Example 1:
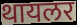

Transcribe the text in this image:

थायलर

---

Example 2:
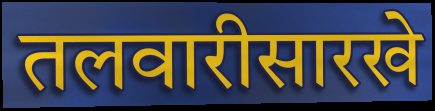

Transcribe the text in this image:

तलवारीसारखे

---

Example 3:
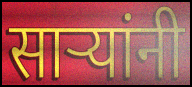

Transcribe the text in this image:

साऱ्यांनी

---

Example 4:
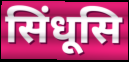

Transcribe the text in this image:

सिंधूसि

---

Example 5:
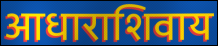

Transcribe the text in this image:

आधाराशिवाय